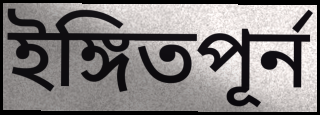
ইঙ্গিতপূর্ন